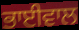
ਭਾਈਵਾਲ